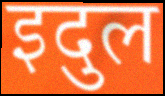
इदुल